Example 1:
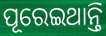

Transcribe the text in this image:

ପୂରେଇଥାନ୍ତି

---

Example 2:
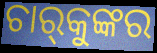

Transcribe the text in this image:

ଚାର୍‌କୁଙ୍କର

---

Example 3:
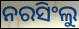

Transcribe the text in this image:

ନରସିଂଲୁ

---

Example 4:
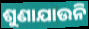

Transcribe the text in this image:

ଶୁଣାଯାଉନି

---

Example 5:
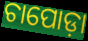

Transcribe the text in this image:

ଚାପୋଡ଼ା